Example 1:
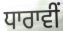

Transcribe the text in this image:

ਧਾਰਾਵੀਂ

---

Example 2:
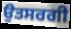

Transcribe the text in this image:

ਉਤਸਰਗੀ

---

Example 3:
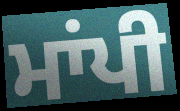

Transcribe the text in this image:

ਮਾਂਪੀ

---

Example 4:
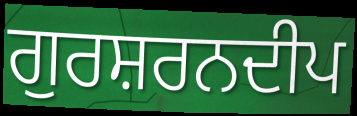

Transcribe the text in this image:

ਗੁਰਸ਼ਰਨਦੀਪ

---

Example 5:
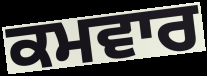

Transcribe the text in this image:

ਕਮਵਾਰ